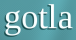
gotla